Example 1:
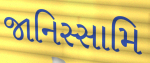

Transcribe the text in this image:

જાનિસ્સામિ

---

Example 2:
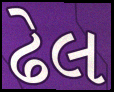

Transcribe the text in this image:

ઢેલ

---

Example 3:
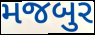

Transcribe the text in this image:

મજબુર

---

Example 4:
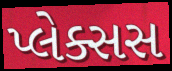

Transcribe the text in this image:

પ્લેક્સસ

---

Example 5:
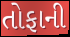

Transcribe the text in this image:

તોફાની